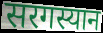
सरगस्यान